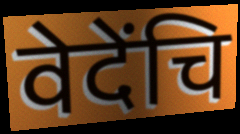
वेदेंचि